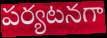
పర్యటనగా